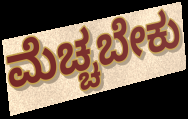
ಮೆಚ್ಚಬೇಕು